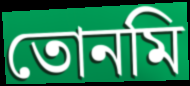
তোনমি